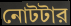
নোটটার